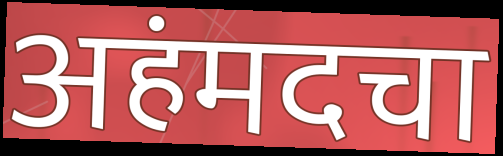
अहंमदचा